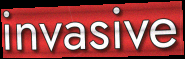
invasive